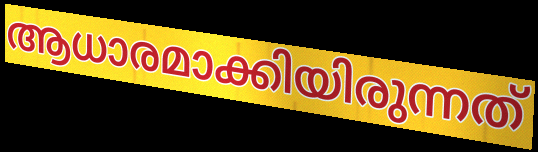
ആധാരമാക്കിയിരുന്നത്